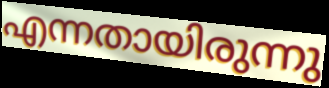
എന്നതായിരുന്നു